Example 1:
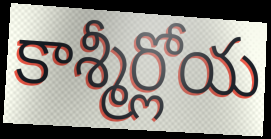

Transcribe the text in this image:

కాశ్మీర్లోయ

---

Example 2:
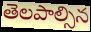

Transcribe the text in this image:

తెలపాల్సిన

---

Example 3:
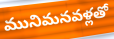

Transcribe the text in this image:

మునిమనవళ్లతో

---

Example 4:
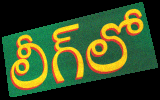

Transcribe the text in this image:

లీగ్‌లో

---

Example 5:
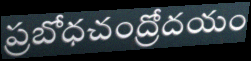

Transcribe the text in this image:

ప్రబోధచంద్రోదయం